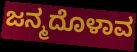
ಜನ್ಮದೊಳಾವ